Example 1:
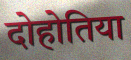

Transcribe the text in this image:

दोहोतिया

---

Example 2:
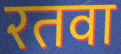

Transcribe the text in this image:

रतवा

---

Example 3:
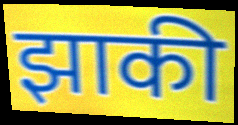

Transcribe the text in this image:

झाकी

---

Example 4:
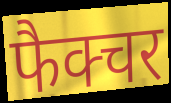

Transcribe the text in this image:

फैक्चर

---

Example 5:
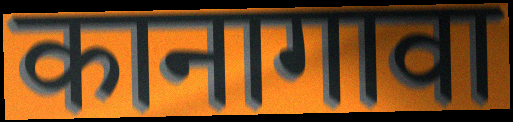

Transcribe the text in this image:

कानागावा